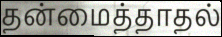
தன்மைத்தாதல்